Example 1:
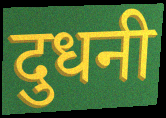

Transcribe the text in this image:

दुधनी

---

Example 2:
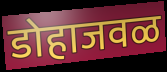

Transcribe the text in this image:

डोहाजवळ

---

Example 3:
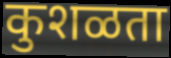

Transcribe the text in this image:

कुशळता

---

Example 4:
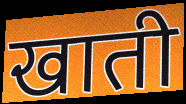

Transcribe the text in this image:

खाती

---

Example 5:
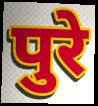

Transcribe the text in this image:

पुरे